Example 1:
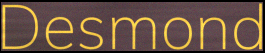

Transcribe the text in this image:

Desmond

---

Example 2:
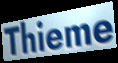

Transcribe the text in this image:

Thieme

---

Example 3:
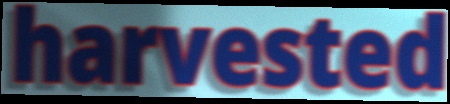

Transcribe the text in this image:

harvested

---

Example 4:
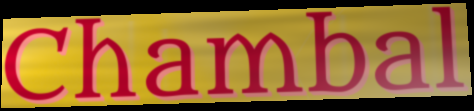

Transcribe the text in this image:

Chambal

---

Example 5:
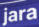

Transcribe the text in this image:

jara